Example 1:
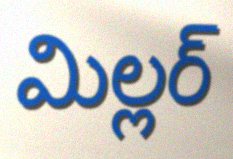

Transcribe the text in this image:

మిల్లర్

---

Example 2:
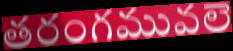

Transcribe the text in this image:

తరంగమువలె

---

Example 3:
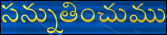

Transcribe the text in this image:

సన్నుతించుము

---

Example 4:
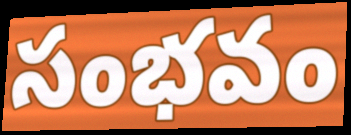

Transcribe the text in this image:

సంభవం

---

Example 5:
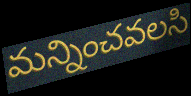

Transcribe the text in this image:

మన్నించవలసి